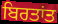
ਬਿਰਤਾਂਤ